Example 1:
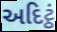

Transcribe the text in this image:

અદિટ્ઠં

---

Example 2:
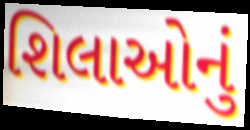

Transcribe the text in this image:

શિલાઓનું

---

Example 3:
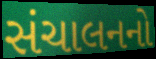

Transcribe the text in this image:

સંચાલનનો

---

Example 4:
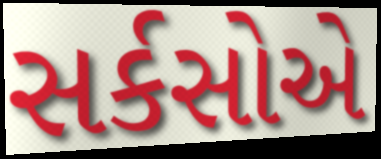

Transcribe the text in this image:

સર્કસોએ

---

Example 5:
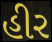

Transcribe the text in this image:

હીર